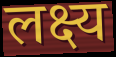
लक्ष्‍य